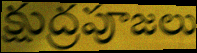
క్షుద్రపూజలు